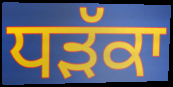
ਧੜੱਕਾ